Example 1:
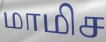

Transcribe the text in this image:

மாமிச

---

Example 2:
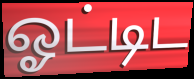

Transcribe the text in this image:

ஓட்டிட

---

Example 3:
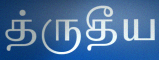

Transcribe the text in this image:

த்ருதீய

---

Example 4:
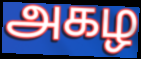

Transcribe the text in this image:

அகழ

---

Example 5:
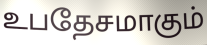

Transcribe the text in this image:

உபதேசமாகும்